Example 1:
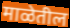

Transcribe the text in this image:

माळेतील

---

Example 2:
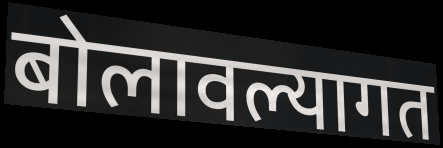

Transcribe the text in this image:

बोलावल्यागत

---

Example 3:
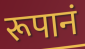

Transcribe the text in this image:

रूपानं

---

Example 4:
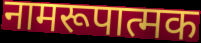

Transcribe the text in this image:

नामरूपात्मक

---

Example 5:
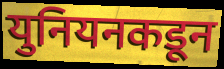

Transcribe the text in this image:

युनियनकडून